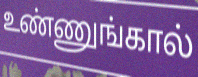
உண்ணுங்கால்